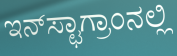
ಇನ್‌ಸ್ಟಾಗ್ರಾಂನಲ್ಲಿ